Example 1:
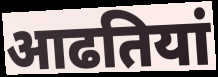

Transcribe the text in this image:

आढतियां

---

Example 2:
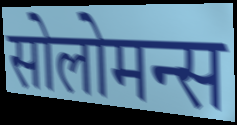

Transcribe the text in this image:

सोलोमन्स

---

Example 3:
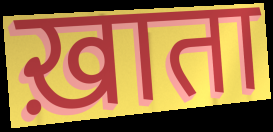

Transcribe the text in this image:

ख़ाता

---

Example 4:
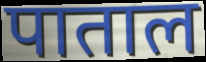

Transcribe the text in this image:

पाताल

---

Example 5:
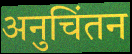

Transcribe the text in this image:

अनुचिंतन